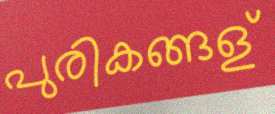
പുരികങ്ങള്